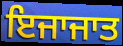
ਇਜਾਜਾਤ